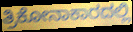
ತ್ರಿಕೋನಾಕಾರದಲ್ಲಿ